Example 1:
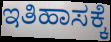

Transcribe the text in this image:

ಇತಿಹಾಸಕ್ಕೆ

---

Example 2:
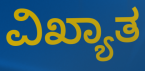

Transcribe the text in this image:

ವಿಖ್ಯಾತ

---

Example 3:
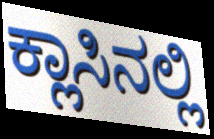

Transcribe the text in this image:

ಕ್ಲಾಸಿನಲ್ಲಿ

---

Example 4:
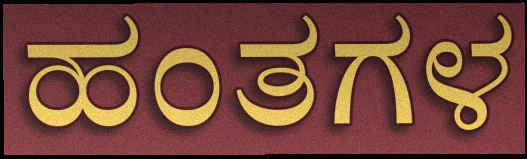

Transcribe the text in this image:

ಹಂತಗಳ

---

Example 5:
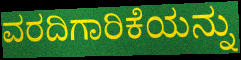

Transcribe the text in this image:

ವರದಿಗಾರಿಕೆಯನ್ನು